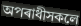
অপৰাধীসকলে